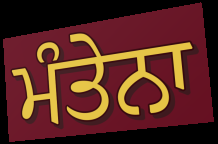
ਮੰਤੇਨਾ